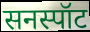
सनस्पॉट